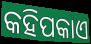
କହିପକାଏ